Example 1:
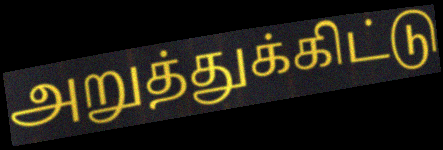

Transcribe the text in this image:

அறுத்துக்கிட்டு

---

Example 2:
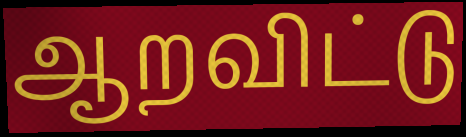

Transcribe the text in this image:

ஆறவிட்டு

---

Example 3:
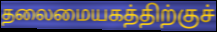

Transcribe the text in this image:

தலைமையகத்திற்குச்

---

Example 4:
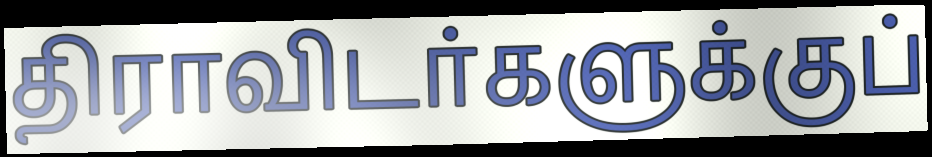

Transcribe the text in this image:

திராவிடர்களுக்குப்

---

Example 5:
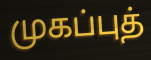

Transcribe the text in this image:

முகப்புத்